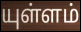
யுள்ளம்